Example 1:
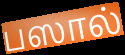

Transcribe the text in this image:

பஸால்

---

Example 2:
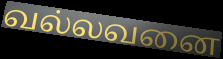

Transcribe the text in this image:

வல்லவனை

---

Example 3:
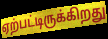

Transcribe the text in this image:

ஏற்பட்டிருக்கிறது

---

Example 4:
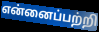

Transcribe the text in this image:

என்னைப்பற்றி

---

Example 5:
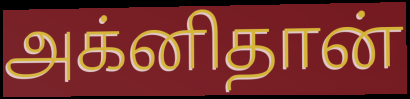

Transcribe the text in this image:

அக்னிதான்